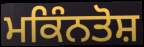
ਮਕਿੰਨਤੋਸ਼